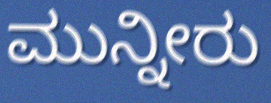
ಮುನ್ನೀರು